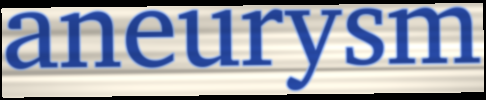
aneurysm